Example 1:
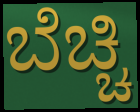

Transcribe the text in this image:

ಬೆಚ್ಚಿ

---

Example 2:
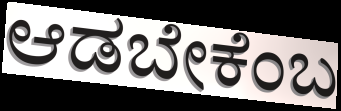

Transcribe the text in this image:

ಆಡಬೇಕೆಂಬ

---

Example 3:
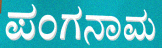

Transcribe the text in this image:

ಪಂಗನಾಮ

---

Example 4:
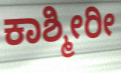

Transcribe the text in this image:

ಕಾಶ್ಮೀರೀ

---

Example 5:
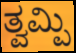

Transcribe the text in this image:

ತ್ವಮ್ಪಿ